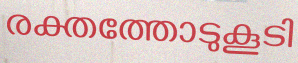
രക്തത്തോടുകൂടി